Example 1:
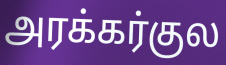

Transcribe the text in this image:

அரக்கர்குல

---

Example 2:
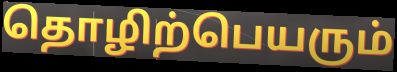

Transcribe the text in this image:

தொழிற்பெயரும்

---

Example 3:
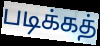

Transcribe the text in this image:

படிக்கத்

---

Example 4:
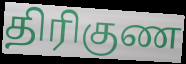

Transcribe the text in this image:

திரிகுண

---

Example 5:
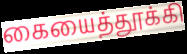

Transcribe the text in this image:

கையைத்தூக்கி